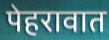
पेहरावात